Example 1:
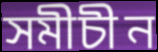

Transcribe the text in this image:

সমীচীন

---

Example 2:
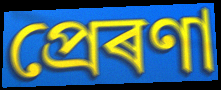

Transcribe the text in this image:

প্ৰেৰণা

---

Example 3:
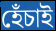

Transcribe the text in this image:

হেঁচাই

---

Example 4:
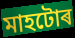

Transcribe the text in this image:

মাহটোৰ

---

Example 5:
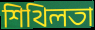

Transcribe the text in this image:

শিথিলতা